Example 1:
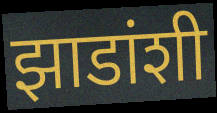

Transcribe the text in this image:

झाडांशी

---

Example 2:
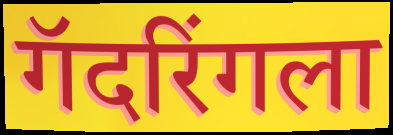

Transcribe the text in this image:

गॅदरिंगला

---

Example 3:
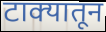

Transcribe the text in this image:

टाक्यातून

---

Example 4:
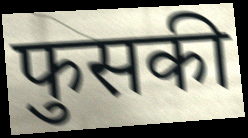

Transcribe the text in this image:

फुसकी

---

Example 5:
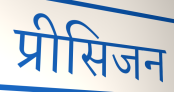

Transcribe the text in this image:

प्रीसिजन